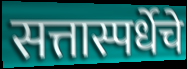
सत्तास्पर्धेचे